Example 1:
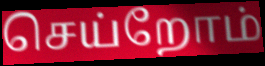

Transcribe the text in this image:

செய்றோம்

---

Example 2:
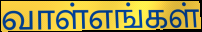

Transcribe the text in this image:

வாள்எங்கள்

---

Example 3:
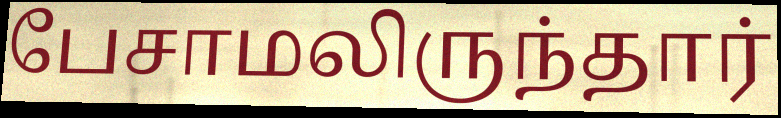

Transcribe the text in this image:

பேசாமலிருந்தார்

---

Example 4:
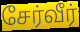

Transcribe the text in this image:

சேர்வீர்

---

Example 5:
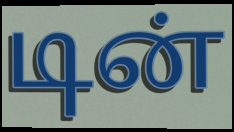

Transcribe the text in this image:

டின்